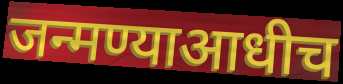
जन्मण्याआधीच